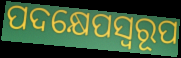
ପଦକ୍ଷେପସ୍ୱରୂପ